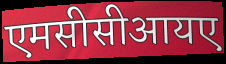
एमसीसीआयए